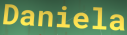
Daniela